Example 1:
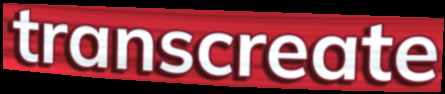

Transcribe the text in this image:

transcreate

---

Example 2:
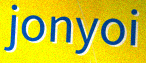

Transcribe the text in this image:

jonyoi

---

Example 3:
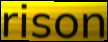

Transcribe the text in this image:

rison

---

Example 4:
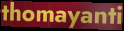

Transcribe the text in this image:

thomayanti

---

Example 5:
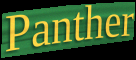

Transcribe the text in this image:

Panther